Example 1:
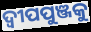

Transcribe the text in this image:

ଦ୍ଵୀପପୁଞ୍ଜକୁ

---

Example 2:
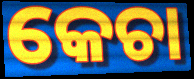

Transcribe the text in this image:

କେଚା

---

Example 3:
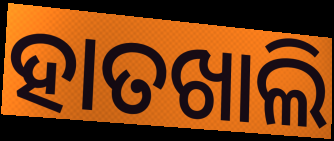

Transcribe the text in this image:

ହାତଖାଲି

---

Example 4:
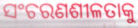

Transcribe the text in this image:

ସଂଚରଣଶୀଳତାକୁ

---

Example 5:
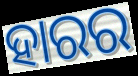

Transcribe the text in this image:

ହାରର